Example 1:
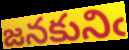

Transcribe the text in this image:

జనకునిఁ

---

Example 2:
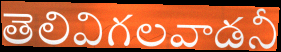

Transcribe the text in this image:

తెలివిగలవాడనీ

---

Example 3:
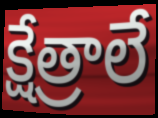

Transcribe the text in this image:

క్షేత్రాలే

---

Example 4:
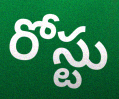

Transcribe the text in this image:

రోస్టు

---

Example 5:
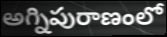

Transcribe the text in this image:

అగ్నిపురాణంలో